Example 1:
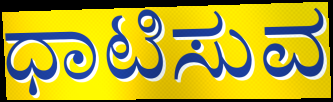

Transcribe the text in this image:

ಧಾಟಿಸುವ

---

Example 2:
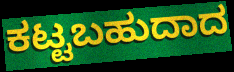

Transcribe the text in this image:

ಕಟ್ಟಬಹುದಾದ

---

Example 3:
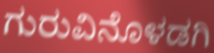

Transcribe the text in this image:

ಗುರುವಿನೊಳಡಗಿ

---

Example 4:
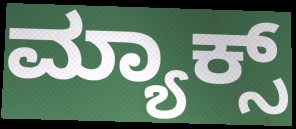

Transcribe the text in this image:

ಮ್ಯಾಕ್ಸ್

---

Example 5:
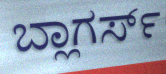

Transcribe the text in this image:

ಬ್ಲಾಗರ್ಸ್